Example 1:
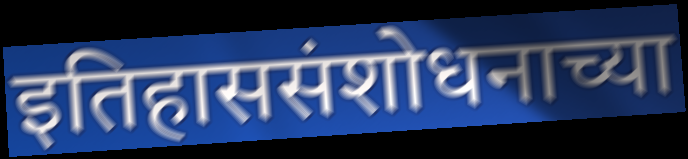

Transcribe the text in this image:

इतिहाससंशोधनाच्या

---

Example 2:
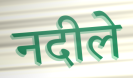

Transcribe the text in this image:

नदीले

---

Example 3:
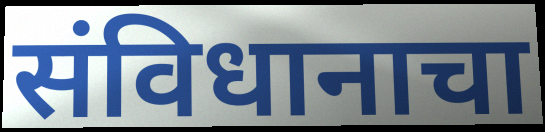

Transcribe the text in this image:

संविधानाचा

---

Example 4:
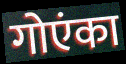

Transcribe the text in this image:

गोएंका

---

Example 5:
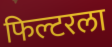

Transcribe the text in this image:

फिल्टरला